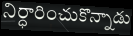
నిర్ధారించుకొన్నాడు